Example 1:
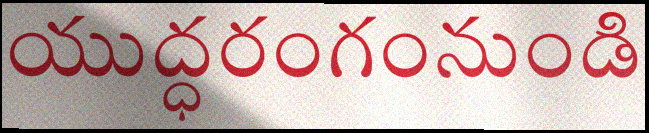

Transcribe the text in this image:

యుద్ధరంగంనుండి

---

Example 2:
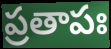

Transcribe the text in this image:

ప్రతాపః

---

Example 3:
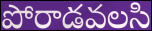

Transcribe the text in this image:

పోరాడవలసి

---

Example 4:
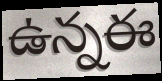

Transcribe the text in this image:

ఉన్నఈ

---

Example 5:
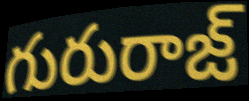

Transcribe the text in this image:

గురురాజ్